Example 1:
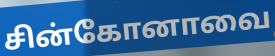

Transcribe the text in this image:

சின்கோனாவை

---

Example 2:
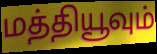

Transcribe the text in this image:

மத்தியூவும்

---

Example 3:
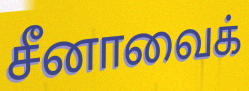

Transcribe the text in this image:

சீனாவைக்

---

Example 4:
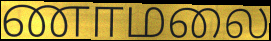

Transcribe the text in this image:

ணாமலை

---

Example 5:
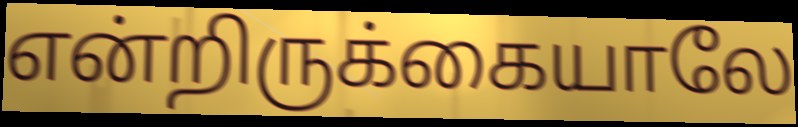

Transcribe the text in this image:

என்றிருக்கையாலே